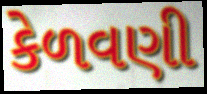
કેળવણી